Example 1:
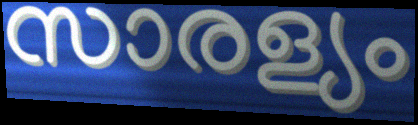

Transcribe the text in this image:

സാരള്യം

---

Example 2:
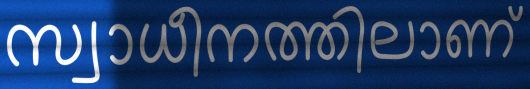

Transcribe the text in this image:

സ്വാധീനത്തിലാണ്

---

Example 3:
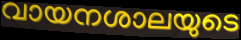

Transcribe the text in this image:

വായനശാലയുടെ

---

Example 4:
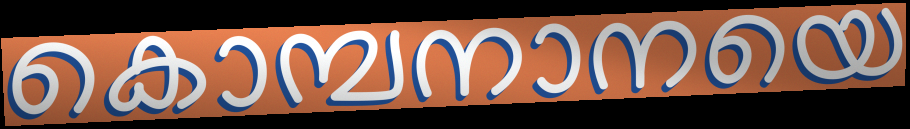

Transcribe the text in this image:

കൊമ്പനാനയെ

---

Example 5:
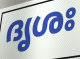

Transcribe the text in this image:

ദൃശഃ